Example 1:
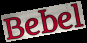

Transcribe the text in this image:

Bebel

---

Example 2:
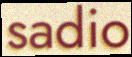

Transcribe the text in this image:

sadio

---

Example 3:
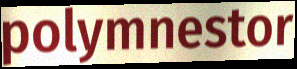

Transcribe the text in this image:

polymnestor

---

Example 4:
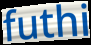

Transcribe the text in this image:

futhi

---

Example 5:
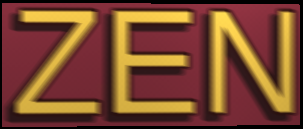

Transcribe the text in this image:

ZEN